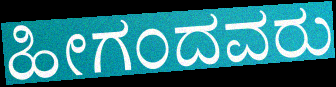
ಹೀಗಂದವರು